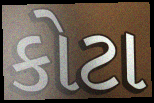
કોટા